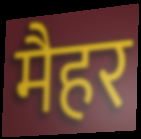
मैहर